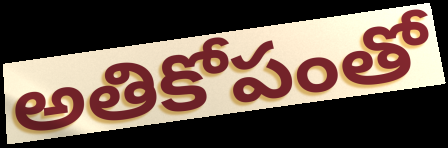
అతికోపంతో